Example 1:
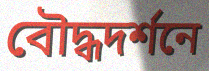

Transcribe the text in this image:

বৌদ্ধদর্শনে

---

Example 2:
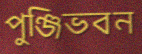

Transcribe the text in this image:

পুঞ্জিভবন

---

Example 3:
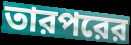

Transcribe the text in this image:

তারপরের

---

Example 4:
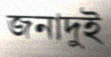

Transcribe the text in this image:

জনাদুই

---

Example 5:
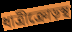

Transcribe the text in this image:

ধাত্রীক্রোড়স্থ